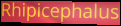
Rhipicephalus